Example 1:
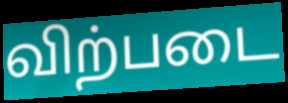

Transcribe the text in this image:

விற்படை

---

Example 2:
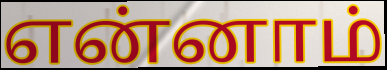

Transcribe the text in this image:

என்னாம்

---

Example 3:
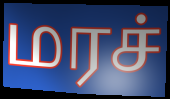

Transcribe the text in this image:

மரச்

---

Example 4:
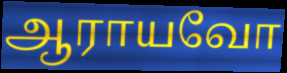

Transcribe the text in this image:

ஆராயவோ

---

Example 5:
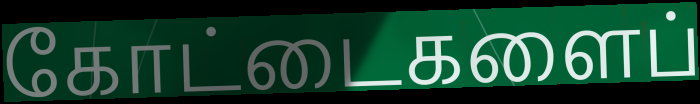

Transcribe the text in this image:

கோட்டைகளைப்